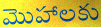
మొహాలకు